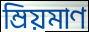
ম্রিয়মাণ